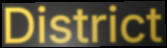
District